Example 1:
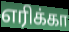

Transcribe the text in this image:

எரிக்கா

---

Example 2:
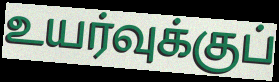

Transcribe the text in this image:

உயர்வுக்குப்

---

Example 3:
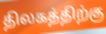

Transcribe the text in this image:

திலகத்திற்கு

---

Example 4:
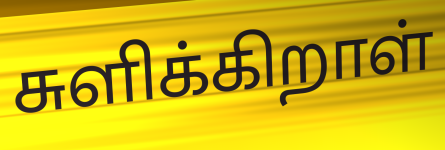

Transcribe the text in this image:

சுளிக்கிறாள்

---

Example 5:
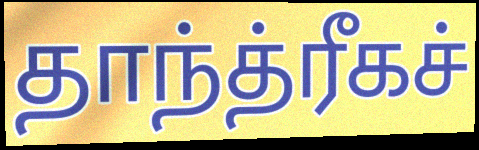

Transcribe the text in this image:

தாந்த்ரீகச்